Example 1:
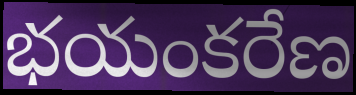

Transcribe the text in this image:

భయంకరేణ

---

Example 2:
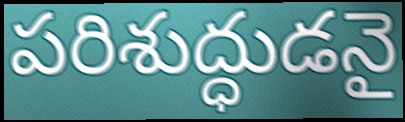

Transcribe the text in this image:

పరిశుద్ధుడనై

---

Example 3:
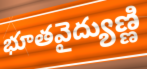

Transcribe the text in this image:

భూతవైద్యుణ్ణి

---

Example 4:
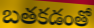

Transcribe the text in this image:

బతకడంతో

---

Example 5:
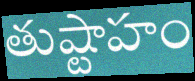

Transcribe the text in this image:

తుష్టాహం